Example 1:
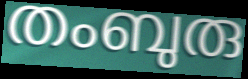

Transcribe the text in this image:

തംബുരു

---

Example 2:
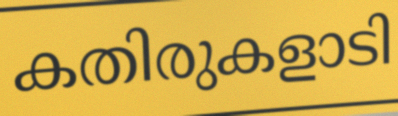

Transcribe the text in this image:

കതിരുകളാടി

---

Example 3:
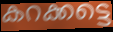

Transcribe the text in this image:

കറക്കട്ടെ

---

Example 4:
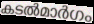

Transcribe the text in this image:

കടൽമാർഗം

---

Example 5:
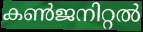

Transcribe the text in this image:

കൺജനിറ്റൽ